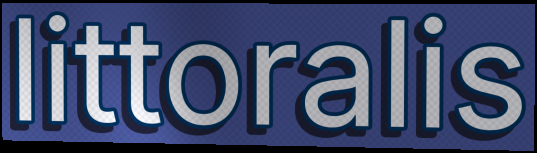
littoralis